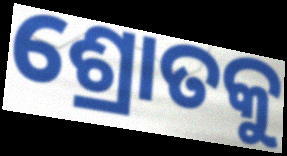
ଶ୍ରୋତକୁ